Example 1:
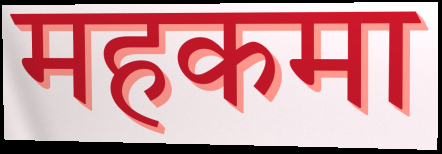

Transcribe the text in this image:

महकमा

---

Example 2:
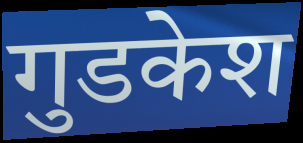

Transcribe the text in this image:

गुडकेश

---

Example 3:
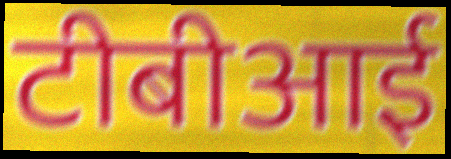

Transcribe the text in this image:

टीबीआई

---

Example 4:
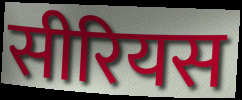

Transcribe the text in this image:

सीरियस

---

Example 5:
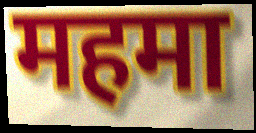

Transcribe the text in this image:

महमा